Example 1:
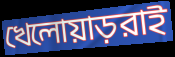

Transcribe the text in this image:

খেলোয়াড়রাই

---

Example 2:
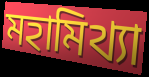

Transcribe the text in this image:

মহামিথ্যা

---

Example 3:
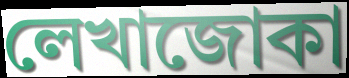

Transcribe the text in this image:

লেখাজোকা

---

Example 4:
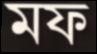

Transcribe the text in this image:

মফ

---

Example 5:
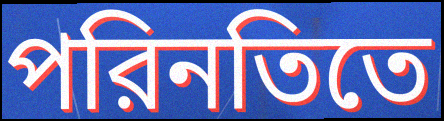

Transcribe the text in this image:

পরিনতিতে